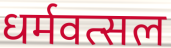
धर्मवत्सल